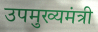
उपमुख्यमंत्री